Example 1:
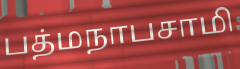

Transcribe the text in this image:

பத்மநாபசாமி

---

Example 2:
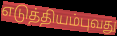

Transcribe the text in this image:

எடுத்தியம்புவது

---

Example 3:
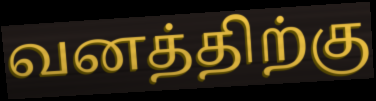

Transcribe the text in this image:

வனத்திற்கு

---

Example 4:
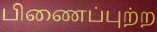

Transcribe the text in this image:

பிணைப்புற்ற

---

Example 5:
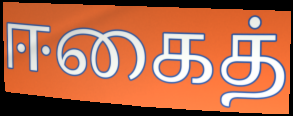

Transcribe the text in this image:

ஈகைத்